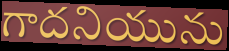
గాదనియును